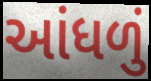
આંધળું